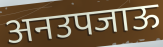
अनउपजाऊ